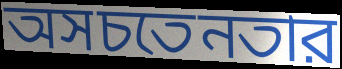
অসচতেনতার